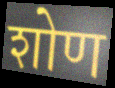
शोण